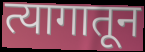
त्यागातून